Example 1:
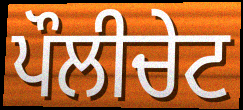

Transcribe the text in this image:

ਪੌਲੀਚੇਟ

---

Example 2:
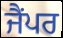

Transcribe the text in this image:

ਜੈਂਪਰ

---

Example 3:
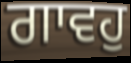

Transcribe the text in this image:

ਗਾਵਹੁ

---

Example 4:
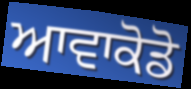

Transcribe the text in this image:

ਆਵਾਕੋਡੋ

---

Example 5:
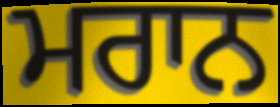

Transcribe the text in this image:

ਮਰਾਨ